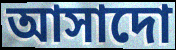
আসাদো